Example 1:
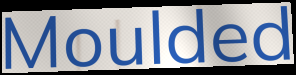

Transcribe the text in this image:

Moulded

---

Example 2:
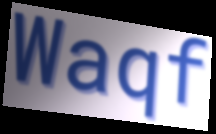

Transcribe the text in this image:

Waqf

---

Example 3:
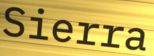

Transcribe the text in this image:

Sierra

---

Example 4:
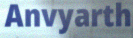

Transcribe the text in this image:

Anvyarth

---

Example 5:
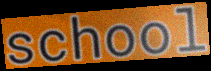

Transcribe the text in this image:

school